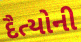
દૈત્યોની